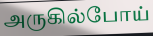
அருகில்போய்